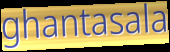
ghantasala